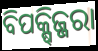
ବିପକ୍ଷ୍ଜ୍ଜିରା